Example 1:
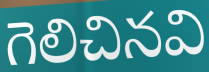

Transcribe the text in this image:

గెలిచినవి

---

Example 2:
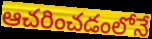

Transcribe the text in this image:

ఆచరించడంలోనే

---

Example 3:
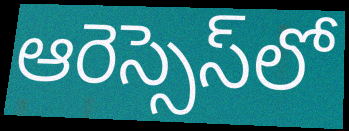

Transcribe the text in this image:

ఆరెస్సెస్‌లో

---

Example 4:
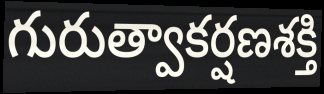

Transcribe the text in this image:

గురుత్వాకర్షణశక్తి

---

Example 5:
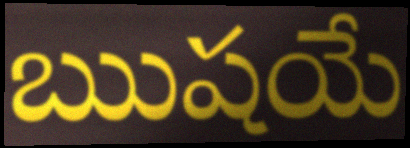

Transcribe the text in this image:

ఋషయే